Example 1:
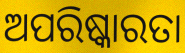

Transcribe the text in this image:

ଅପରିଷ୍କାରତା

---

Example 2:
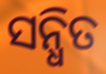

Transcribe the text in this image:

ସନ୍ଧିତ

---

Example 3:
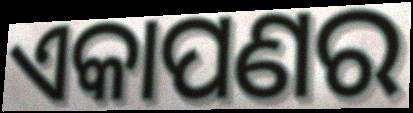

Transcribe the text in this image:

ଏକାପଣର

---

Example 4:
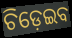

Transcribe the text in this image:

ଚିଡ଼େଇବ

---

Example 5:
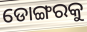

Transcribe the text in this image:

ଡୋଙ୍ଗରକୁ